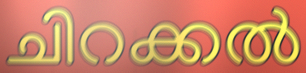
ചിറക്കൽ